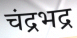
चंद्रभद्र